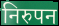
निरुपन